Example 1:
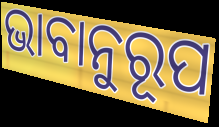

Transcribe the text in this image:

ଭାବାନୁରୂପ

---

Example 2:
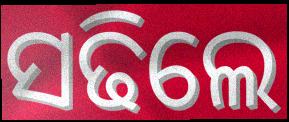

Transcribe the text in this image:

ସଢିଲେ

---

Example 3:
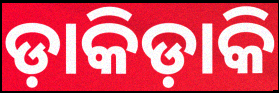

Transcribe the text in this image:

ଡ଼ାକିଡ଼ାକି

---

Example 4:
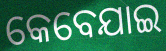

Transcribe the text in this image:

କେବେଯାଇ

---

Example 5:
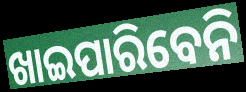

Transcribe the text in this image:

ଖାଇପାରିବେନି